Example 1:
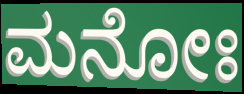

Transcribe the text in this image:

ಮನೋಃ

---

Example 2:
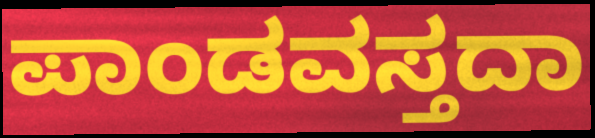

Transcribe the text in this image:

ಪಾಂಡವಸ್ತದಾ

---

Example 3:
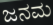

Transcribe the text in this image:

ಜನಮ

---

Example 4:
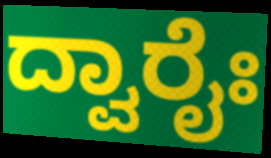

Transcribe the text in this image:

ದ್ವಾರೈಃ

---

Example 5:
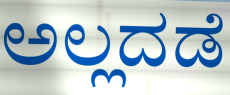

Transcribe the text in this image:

ಅಲ್ಲದಡೆ